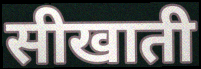
सीखाती